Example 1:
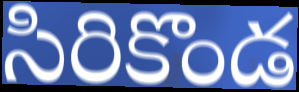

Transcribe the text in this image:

సిరికొండ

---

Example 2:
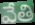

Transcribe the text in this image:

వేతి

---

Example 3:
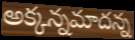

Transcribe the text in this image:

అక్కన్నమాదన్న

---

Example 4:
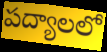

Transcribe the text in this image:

పద్యాలలో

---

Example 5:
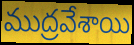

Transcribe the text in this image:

ముద్రవేశాయి